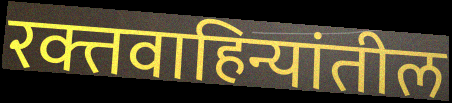
रक्तवाहिन्यांतील